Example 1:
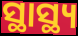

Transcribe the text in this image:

ସ୍ଥାସ୍ଥ୍ୟ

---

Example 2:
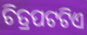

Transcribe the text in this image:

ଚିତ୍ରପଟଟିଏ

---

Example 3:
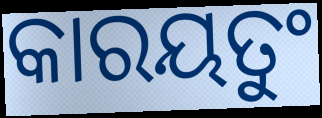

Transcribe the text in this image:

କାରୟତୁଂ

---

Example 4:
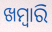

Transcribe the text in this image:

ଖମ୍ୱାରି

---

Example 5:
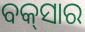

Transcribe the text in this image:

ବକ୍‌ସାର